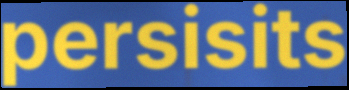
persisits